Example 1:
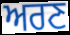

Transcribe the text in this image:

ਅਰਣ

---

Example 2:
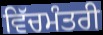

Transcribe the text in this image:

ਵਿੱਚਮੰਤਰੀ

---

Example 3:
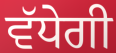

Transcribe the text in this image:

ਵੱਧੇਗੀ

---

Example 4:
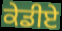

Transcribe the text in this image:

ਕੇਡੀਏ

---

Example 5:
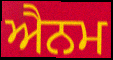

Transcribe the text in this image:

ਐਨਮ